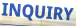
INQUIRY